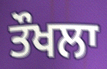
ਤੌਖਲਾ